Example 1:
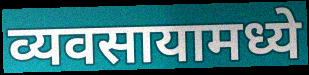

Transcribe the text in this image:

व्यवसायामध्ये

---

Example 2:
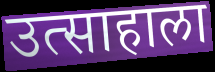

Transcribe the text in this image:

उत्साहाला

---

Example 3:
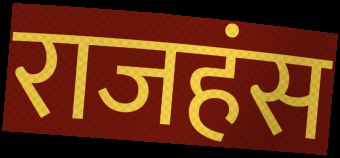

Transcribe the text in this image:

राजहंस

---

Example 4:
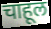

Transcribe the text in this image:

चाहूल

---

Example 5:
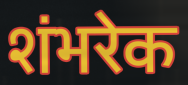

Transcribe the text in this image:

शंभरेक